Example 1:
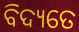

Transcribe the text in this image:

ବିଦ୍ୟତେ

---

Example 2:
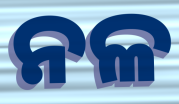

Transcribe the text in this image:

ନଳ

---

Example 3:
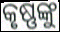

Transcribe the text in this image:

କୃଷ୍ଣଙ୍କୁ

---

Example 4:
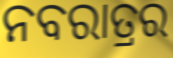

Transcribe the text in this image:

ନବରାତ୍ରର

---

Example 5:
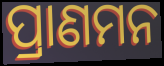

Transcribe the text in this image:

ପ୍ରାଣମନ